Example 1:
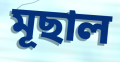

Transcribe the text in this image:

মূছাল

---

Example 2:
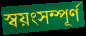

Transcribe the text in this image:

স্বয়ংসম্পূৰ্ণ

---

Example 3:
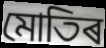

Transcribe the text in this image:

মোতিৰ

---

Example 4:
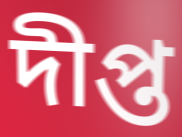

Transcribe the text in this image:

দীপ্ত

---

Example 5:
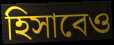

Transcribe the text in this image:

হিসাবেও